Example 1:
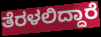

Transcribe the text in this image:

ತೆರಳಲಿದ್ದಾರೆ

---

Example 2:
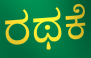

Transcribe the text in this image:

ರಥಕೆ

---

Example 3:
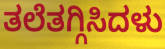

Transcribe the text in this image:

ತಲೆತಗ್ಗಿಸಿದಳು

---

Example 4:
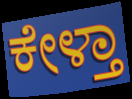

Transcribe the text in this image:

ಕೇಳ್ತಾ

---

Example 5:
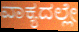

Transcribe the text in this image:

ವಾಕ್ಯದಲ್ಲೇ